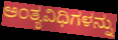
ಅಂತ್ಯವಿಧಿಗಳನ್ನು